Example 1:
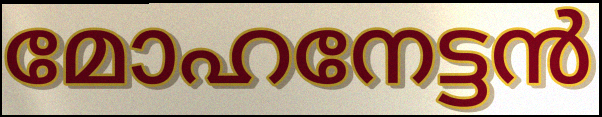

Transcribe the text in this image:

മോഹനേട്ടൻ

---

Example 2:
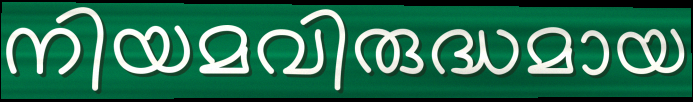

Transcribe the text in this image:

നിയമവിരുദ്ധമായ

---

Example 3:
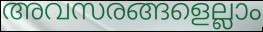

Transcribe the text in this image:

അവസരങ്ങളെല്ലാം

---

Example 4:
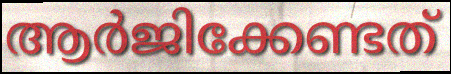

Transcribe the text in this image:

ആർജിക്കേണ്ടത്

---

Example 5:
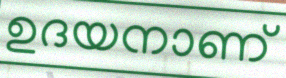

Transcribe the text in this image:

ഉദയനാണ്